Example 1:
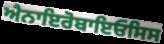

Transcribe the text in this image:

ਐਨਾਇਰੋਬਾਇਓਸਿਸ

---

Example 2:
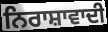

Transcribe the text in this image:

ਨਿਰਾਸ਼ਾਵਾਦੀ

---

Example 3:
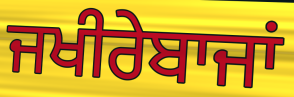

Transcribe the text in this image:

ਜਖੀਰੇਬਾਜਾਂ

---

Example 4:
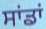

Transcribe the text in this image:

ਸਾਂਡਾਂ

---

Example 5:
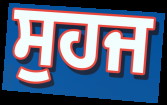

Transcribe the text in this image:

ਸੁਹਜ